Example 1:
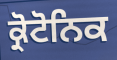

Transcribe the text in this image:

ਕ੍ਰੋਟੋਨਿਕ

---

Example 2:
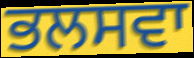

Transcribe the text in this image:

ਭਲਸਵਾ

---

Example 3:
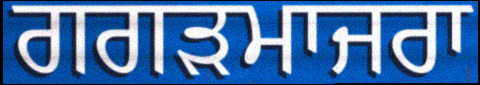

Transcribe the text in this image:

ਗਗੜਮਾਜਰਾ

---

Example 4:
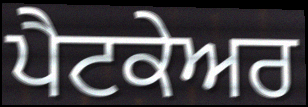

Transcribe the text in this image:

ਪੈਟਕੇਅਰ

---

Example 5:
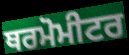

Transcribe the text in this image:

ਥਰਮੋਮੀਟਰ